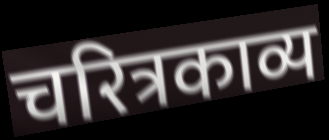
चरित्रकाव्य